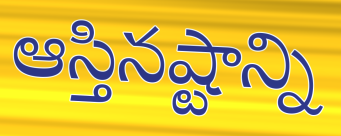
ఆస్తినష్టాన్ని